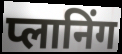
प्लानिंग